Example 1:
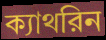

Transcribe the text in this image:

ক্যাথরিন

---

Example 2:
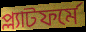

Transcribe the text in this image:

প্ল্যাটফর্মে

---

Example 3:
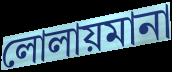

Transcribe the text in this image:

লোলায়মানা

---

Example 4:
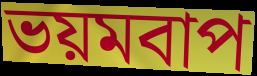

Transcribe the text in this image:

ভয়মবাপ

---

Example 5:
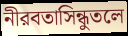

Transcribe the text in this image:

নীরবতাসিন্ধুতলে